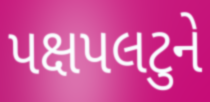
પક્ષપલટુને